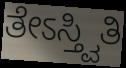
ತೇಽಸ್ತ್ವಿತಿ